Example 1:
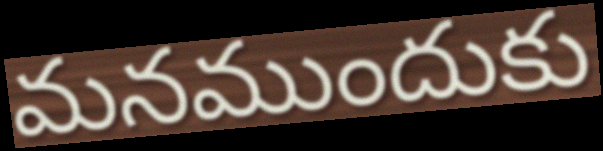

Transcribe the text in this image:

మనముందుకు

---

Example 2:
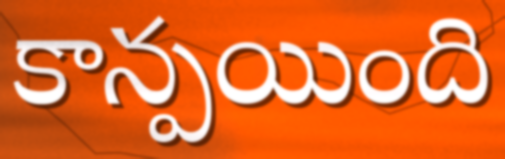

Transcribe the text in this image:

కాన్పయింది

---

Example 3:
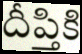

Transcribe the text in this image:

దీప్తికి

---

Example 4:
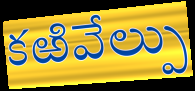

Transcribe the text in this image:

కఱివేల్పు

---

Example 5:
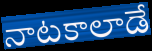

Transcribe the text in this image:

నాటకాలాడే